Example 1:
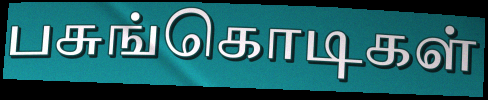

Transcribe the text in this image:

பசுங்கொடிகள்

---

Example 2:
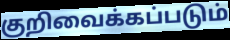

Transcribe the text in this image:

குறிவைக்கப்படும்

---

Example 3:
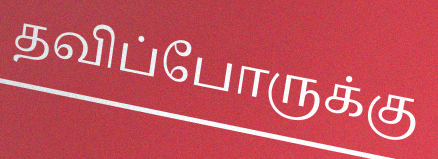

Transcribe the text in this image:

தவிப்போருக்கு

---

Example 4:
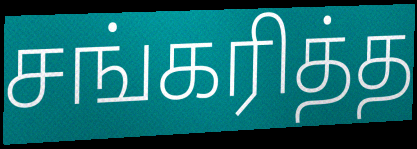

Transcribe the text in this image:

சங்கரித்த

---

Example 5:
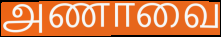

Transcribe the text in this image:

அணாவை